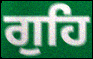
ਗੁਹਿ